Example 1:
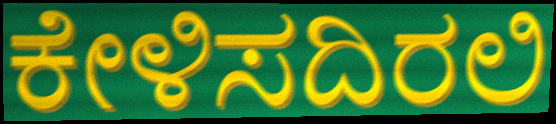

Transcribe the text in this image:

ಕೇಳಿಸದಿರಲಿ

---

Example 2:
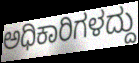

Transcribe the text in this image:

ಅಧಿಕಾರಿಗಳದ್ದು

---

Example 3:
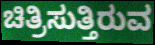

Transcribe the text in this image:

ಚಿತ್ರಿಸುತ್ತಿರುವ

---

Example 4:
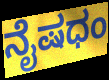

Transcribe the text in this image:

ನೈಷಧಂ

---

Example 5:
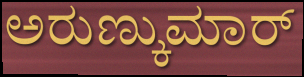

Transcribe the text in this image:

ಅರುಣ್ಕುಮಾರ್